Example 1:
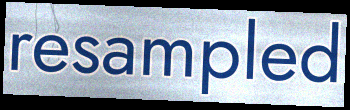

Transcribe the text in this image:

resampled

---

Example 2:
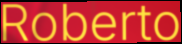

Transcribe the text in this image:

Roberto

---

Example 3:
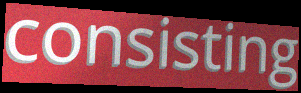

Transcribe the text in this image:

consisting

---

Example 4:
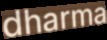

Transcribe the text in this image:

dharma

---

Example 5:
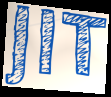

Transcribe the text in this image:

JIT